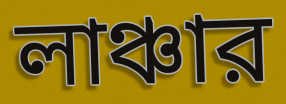
লাঞ্চার